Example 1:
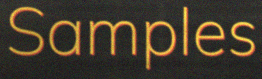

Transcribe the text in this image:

Samples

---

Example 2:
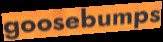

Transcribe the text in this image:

goosebumps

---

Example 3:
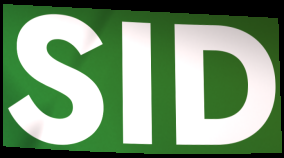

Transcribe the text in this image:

SID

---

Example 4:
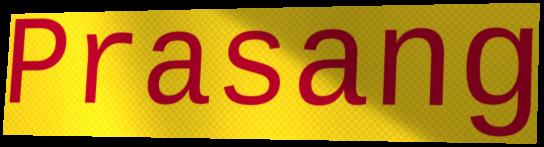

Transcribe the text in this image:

Prasang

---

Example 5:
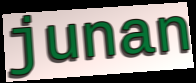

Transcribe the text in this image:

junan